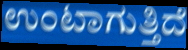
ಉಂಟಾಗುತ್ತಿದೆ